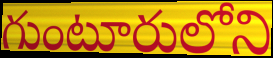
గుంటూరులోని